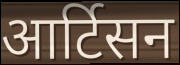
आर्टिसन